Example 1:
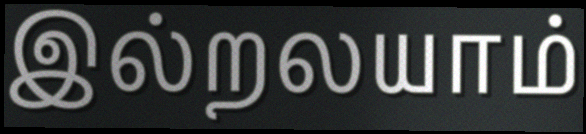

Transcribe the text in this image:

இல்றலயாம்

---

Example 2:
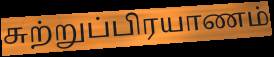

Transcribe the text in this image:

சுற்றுப்பிரயாணம்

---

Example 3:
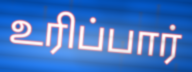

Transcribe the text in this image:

உரிப்பார்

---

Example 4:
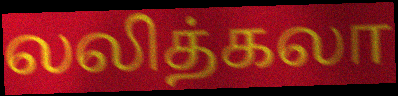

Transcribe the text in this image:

லலித்கலா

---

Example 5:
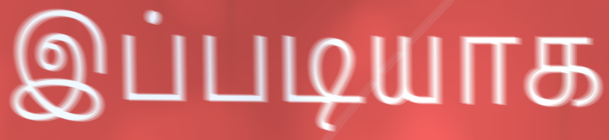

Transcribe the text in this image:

இப்படியாக